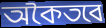
অকৈতবে